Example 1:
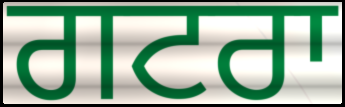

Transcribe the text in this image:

ਗਟਰਾ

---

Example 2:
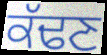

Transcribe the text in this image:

ਕੱਢਣ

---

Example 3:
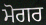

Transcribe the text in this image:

ਮੋਗਰ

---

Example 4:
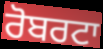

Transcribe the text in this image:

ਰੋਬਰਟਾ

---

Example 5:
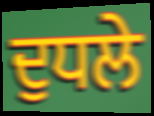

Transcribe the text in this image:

ਦੁਧਲੇ